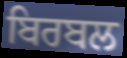
ਬਿਰਬਲ